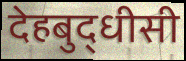
देहबुद्धीसी